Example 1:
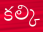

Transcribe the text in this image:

కల్కి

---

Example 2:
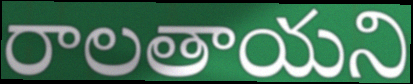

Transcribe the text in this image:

రాలతాయని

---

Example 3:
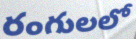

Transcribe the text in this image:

రంగులలో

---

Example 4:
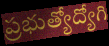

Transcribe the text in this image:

ప్రభుత్యోద్యోగి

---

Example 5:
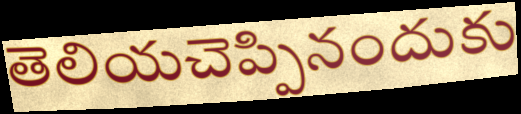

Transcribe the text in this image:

తెలియచెప్పినందుకు